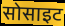
सोसाइट